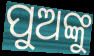
ପୁଅଙ୍କୁ